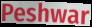
Peshwar